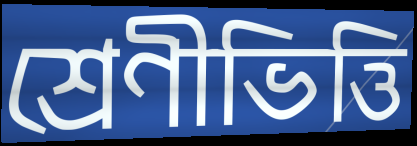
শ্রেণীভিত্তি